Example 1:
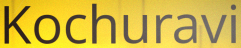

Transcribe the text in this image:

Kochuravi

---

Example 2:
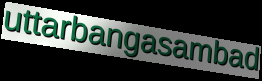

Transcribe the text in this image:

uttarbangasambad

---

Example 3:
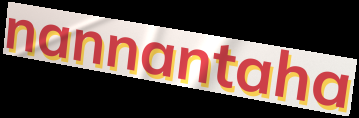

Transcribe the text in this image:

nannantaha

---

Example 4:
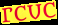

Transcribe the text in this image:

rcuc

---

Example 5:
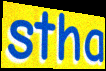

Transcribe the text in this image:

stha